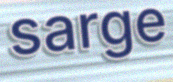
sarge